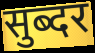
सुब्दर